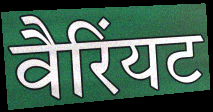
वैरिंयट